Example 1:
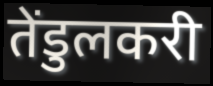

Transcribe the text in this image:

तेंडुलकरी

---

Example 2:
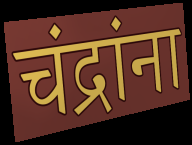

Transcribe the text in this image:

चंद्रांना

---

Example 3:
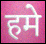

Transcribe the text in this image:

हमे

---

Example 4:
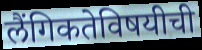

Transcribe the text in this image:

लैंगिकतेविषयीची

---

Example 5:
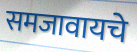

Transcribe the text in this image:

समजावायचे